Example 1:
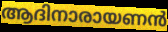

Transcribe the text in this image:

ആദിനാരായണൻ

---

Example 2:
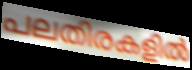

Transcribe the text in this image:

പലതിരകളിൽ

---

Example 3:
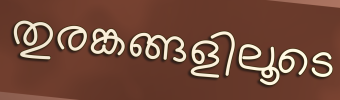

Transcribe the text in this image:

തുരങ്കങ്ങളിലൂടെ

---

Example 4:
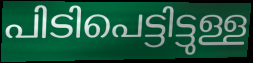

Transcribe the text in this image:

പിടിപെട്ടിട്ടുള്ള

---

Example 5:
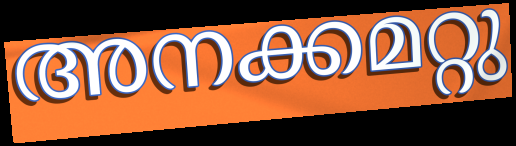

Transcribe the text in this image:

അനക്കമറ്റു